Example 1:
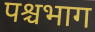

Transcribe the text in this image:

पश्चभाग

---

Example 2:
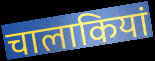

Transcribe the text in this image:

चालाकियां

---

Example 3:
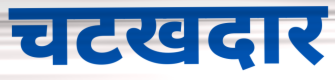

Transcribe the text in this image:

चटखदार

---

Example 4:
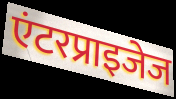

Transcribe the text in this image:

एंटरप्राइजेज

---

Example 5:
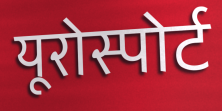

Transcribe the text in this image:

यूरोस्पोर्ट